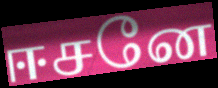
ஈசனே